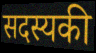
सदस्यकी